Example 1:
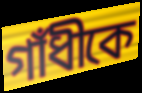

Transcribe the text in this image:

গাঁধীকে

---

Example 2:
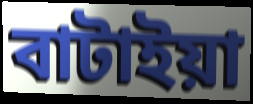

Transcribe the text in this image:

বাটাইয়া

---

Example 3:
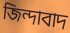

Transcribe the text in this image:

জিন্দাবাদ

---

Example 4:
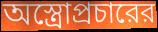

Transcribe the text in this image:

অস্ত্রোপ্রচারের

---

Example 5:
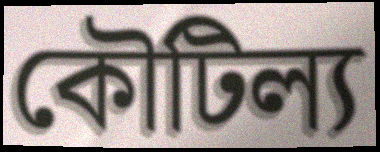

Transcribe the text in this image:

কৌটিল্য